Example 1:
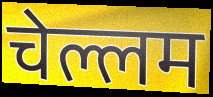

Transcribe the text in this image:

चेल्लम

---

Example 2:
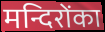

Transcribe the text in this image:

मन्दिरोंका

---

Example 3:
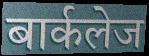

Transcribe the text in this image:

बार्कलेज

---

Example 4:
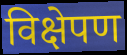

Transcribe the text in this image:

विक्षेपण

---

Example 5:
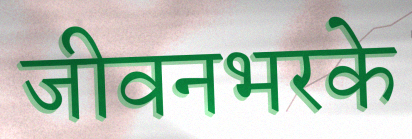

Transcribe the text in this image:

जीवनभरके